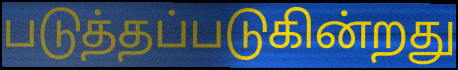
படுத்தப்படுகின்றது